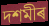
দশমীৰ